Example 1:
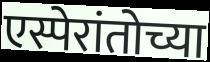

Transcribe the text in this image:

एस्पेरांतोच्या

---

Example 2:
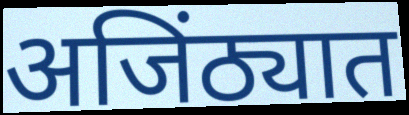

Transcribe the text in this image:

अजिंठ्यात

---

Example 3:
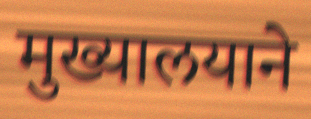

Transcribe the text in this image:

मुख्यालयाने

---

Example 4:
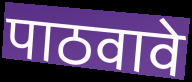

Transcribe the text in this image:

पाठवावे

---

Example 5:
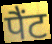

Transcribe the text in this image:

पैंट